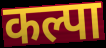
कल्पा